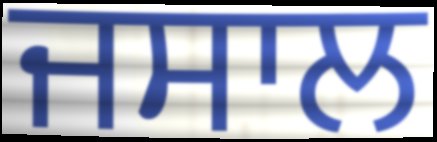
ਜਸਾਲ